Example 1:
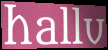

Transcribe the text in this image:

hallu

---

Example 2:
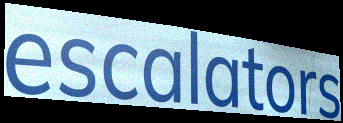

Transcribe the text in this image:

escalators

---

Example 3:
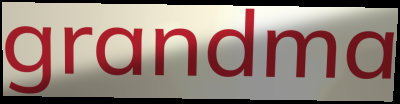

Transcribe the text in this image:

grandma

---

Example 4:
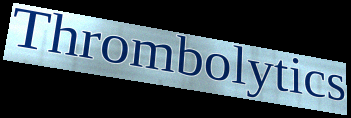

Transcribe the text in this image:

Thrombolytics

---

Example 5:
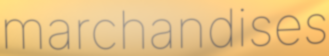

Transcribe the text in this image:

marchandises